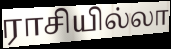
ராசியில்லா